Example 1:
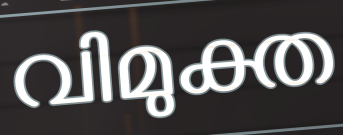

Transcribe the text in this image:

വിമുക്ത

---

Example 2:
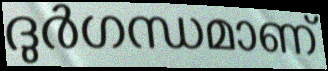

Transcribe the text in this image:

ദുർഗന്ധമാണ്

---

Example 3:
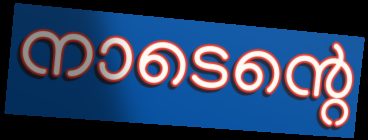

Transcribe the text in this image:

നാടെന്റെ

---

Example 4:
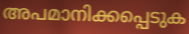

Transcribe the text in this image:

അപമാനിക്കപ്പെടുക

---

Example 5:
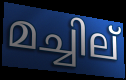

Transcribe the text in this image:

മച്ചില്